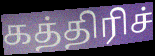
கத்திரிச்